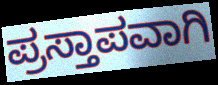
ಪ್ರಸ್ತಾಪವಾಗಿ